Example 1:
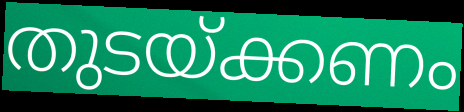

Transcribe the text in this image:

തുടയ്ക്കണം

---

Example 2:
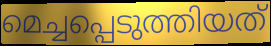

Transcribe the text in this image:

മെച്ചപ്പെടുത്തിയത്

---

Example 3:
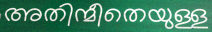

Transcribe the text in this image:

അതിന്മീതെയുള്ള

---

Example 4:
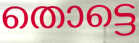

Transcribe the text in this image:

തൊട്ടെ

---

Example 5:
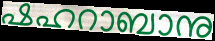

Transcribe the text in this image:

ഷഹറാബാനു